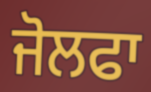
ਜੋਲਫਾ